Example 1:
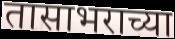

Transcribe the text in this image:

तासाभराच्या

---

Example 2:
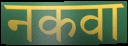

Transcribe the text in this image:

नकवा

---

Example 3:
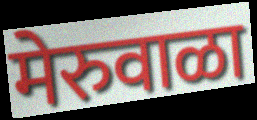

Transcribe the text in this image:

मेरुवाळा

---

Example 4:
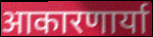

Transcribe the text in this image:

आकारणार्या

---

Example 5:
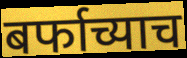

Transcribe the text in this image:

बर्फाच्याच